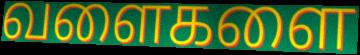
வளைகளை